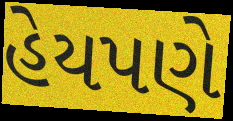
હેયપણે